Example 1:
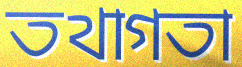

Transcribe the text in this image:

তথাগতা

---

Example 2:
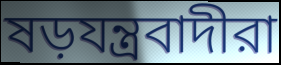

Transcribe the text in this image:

ষড়যন্ত্রবাদীরা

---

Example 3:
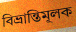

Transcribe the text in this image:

বিভ্রান্তিমূলক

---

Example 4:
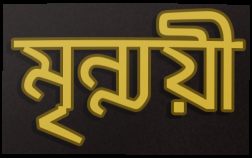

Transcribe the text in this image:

মৃন্ময়ী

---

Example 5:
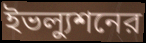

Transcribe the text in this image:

ইভল্যুশনের